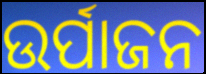
ଉର୍ପାଜନ